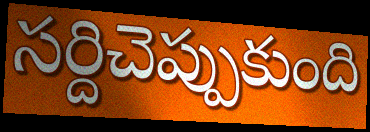
సర్దిచెప్పుకుంది